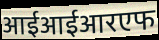
आईआईआरएफ